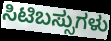
ಸಿಟಿಬಸ್ಸುಗಳು